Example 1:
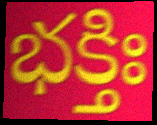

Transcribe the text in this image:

భక్తిః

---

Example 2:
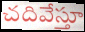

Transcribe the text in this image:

చదివేస్తూ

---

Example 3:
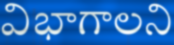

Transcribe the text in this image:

విభాగాలని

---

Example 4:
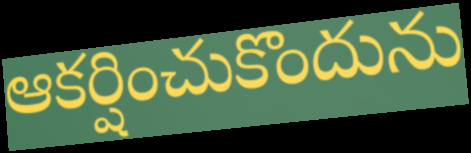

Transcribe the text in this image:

ఆకర్షించుకొందును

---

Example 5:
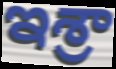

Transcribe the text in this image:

ఇశ్రా